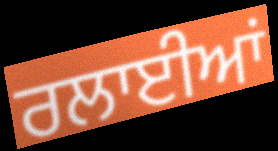
ਰਲਾਈਆਂ